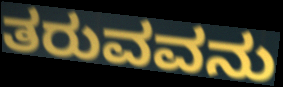
ತರುವವನು